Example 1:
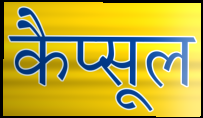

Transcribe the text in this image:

कैप्सूल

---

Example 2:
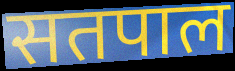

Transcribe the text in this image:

सतपाल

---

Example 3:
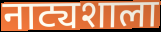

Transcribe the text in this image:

नाट्यशाला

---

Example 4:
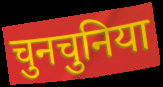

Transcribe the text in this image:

चुनचुनिया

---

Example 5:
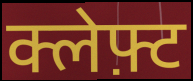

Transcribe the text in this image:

क्लेफ़्ट